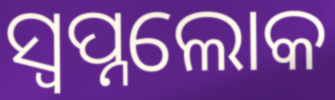
ସ୍ୱପ୍ନଲୋକ